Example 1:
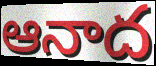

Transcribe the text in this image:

ఆనాద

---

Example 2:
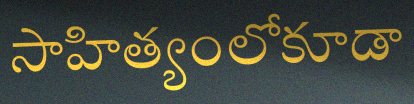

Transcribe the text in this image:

సాహిత్యంలోకూడా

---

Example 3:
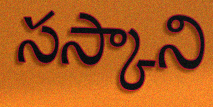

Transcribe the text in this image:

సస్కాని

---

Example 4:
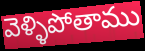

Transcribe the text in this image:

వెళ్ళిపోతాము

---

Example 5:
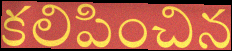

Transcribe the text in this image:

కలిపించిన